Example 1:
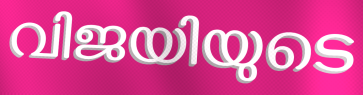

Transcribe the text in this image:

വിജയിയുടെ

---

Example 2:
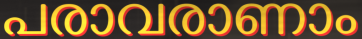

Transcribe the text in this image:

പരാവരാണാം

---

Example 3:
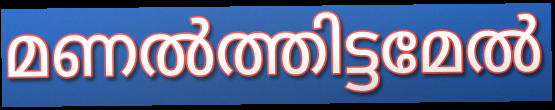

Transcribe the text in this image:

മണൽത്തിട്ടമേൽ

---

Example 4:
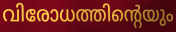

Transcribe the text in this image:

വിരോധത്തിന്റെയും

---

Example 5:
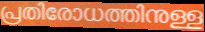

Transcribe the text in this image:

പ്രതിരോധത്തിനുള്ള